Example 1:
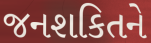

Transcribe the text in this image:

જનશકિતને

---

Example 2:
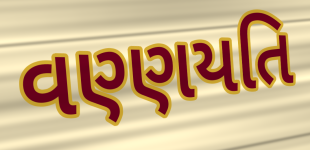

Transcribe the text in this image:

વણ્ણયતિ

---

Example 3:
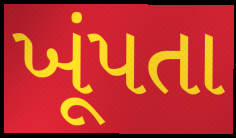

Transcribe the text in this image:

ખૂંપતા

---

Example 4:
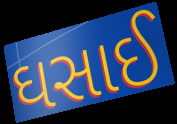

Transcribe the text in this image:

ઘસાઈ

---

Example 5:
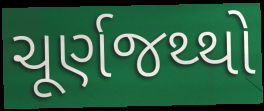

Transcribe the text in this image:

ચૂર્ણજથ્થો